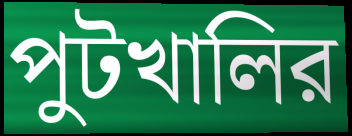
পুটখালির